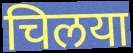
चिलया